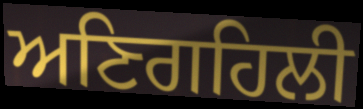
ਅਣਿਗਹਿਲੀ